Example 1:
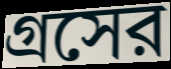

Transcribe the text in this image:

গ্রসের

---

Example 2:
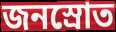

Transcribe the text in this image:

জনস্রোত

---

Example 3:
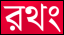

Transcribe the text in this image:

রথং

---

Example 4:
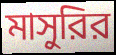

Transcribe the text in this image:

মাসুরির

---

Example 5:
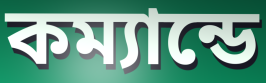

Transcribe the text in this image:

কম্যান্ডে